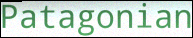
Patagonian